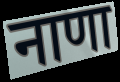
नाणा